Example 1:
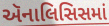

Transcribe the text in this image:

ઍનાલિસિસમાં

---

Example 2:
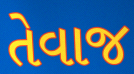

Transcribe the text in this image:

તેવાજ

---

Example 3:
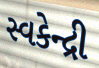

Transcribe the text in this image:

સ્વકેન્દ્રી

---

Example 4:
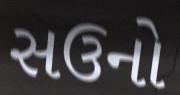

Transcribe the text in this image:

સઉનો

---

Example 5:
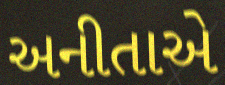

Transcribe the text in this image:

અનીતાએ